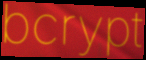
bcrypt